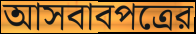
আসবাবপত্রের